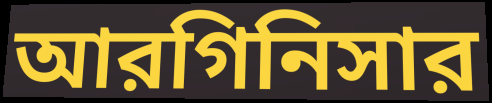
আরগিনিসার